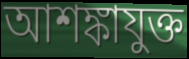
আশঙ্কাযুক্ত